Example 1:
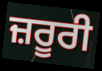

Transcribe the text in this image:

ਜ਼ਰੂਰੀ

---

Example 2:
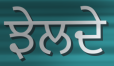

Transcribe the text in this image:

ਝੇਲਦੇ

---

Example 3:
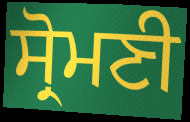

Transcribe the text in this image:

ਸ੍ਰੋਮਣੀ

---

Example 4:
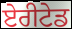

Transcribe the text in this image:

ਏਰੀਟੇਡ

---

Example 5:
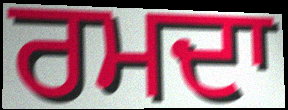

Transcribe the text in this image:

ਰਮਦਾ